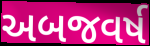
અબજવર્ષ